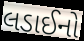
લડાઈનો